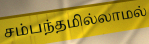
சம்பந்தமில்லாமல்